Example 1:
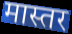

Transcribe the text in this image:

मास्तर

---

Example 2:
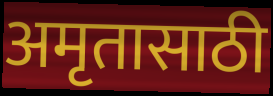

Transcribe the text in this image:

अमृतासाठी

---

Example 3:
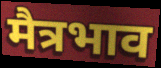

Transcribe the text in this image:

मैत्रभाव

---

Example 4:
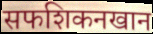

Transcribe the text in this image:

सफशिकनखान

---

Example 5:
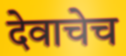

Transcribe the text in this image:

देवाचेच